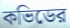
কভিডের